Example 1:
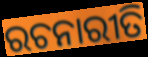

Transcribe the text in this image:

ରଚନାରୀତି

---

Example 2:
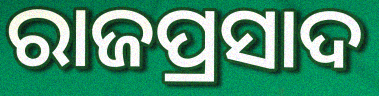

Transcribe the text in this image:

ରାଜପ୍ରସାଦ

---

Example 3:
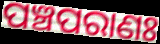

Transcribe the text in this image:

ପଞ୍ଚପରାଣଃ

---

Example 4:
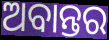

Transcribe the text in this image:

ଅବାନ୍ତର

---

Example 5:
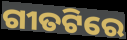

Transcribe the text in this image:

ଗୀତଟିରେ